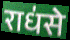
राध॑से